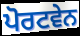
ਪੋਰਟਵੇਨ